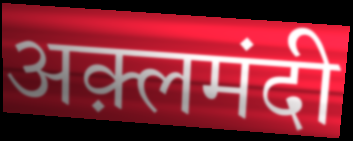
अक़्लमंदी